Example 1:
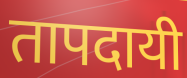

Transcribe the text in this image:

तापदायी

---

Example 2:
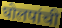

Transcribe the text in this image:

घोलपांची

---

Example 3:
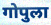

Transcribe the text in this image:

गोपुला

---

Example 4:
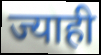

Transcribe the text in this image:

ज्याही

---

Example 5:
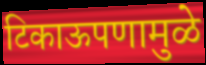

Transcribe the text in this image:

टिकाऊपणामुळे